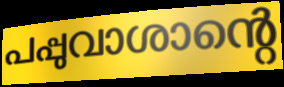
പപ്പുവാശാന്റെ